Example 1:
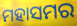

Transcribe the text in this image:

ମହାସମର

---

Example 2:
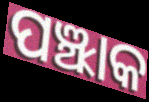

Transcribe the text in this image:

ପଞ୍ଝାକ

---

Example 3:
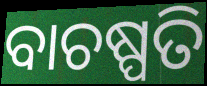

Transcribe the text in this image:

ବାଚଷ୍ପତି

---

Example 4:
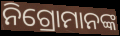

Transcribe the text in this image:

ନିଗ୍ରୋମାନଙ୍କ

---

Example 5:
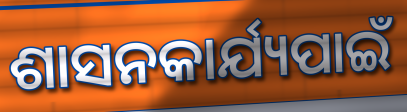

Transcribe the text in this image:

ଶାସନକାର୍ଯ୍ୟପାଇଁ